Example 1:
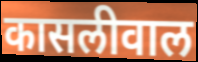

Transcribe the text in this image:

कासलीवाल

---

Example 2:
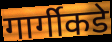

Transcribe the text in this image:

गार्गीकडे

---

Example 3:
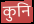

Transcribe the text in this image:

कुनि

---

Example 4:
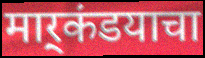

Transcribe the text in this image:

मार्कंडयाचा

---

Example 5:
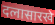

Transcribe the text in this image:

दलासारखे